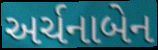
અર્ચનાબેન